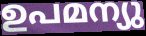
ഉപമന്യു